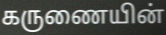
கருணையின்